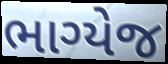
ભાગ્યેજ